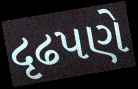
દૃઢપણે